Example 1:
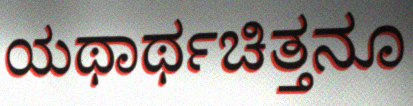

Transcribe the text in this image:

ಯಥಾರ್ಥಚಿತ್ತನೂ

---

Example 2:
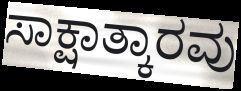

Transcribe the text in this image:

ಸಾಕ್ಷಾತ್ಕಾರವು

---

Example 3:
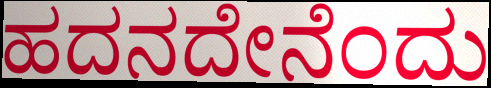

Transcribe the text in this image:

ಹದನದೇನೆಂದು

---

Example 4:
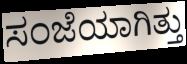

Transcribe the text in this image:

ಸಂಜೆಯಾಗಿತ್ತು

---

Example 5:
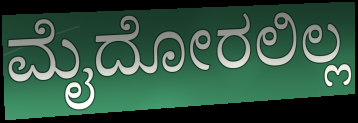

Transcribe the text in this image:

ಮೈದೋರಲಿಲ್ಲ